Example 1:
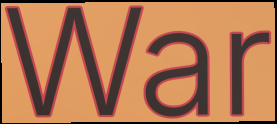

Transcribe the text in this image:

War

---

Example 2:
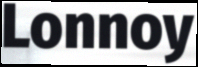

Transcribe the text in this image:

Lonnoy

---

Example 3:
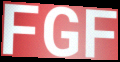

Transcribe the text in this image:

FGF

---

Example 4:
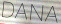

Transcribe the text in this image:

DANA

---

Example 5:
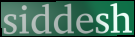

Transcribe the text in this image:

siddesh